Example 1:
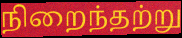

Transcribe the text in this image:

நிறைந்தற்று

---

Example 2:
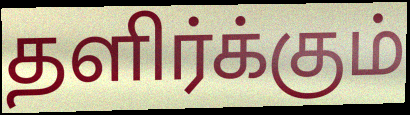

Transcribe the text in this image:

தளிர்க்கும்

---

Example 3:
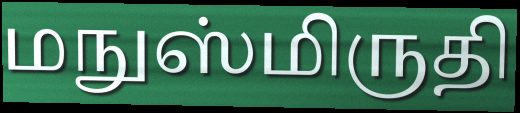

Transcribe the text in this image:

மநுஸ்மிருதி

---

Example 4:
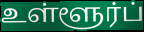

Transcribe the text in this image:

உள்ளூர்ப்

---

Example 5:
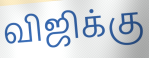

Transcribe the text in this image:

விஜிக்கு